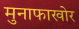
मुनाफाखोर